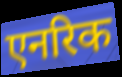
एनरिक